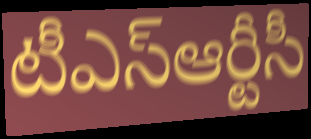
టీఎస్ఆర్టీసీ